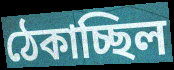
ঠেকাচ্ছিল